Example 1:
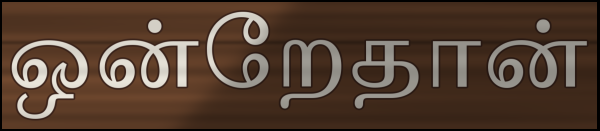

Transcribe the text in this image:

ஒன்றேதான்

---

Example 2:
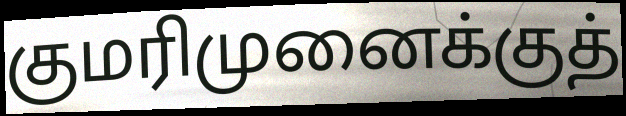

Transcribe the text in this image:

குமரிமுனைக்குத்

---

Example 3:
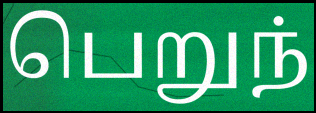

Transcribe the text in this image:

பெறுந்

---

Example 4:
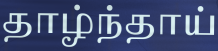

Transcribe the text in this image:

தாழ்ந்தாய்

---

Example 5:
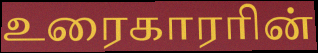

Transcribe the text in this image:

உரைகாரரின்